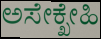
ಅಸೇಕ್ಖೇಹಿ